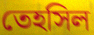
তেহসিল